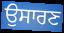
ਉਸਾਰਣ